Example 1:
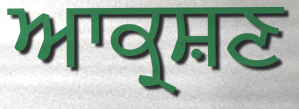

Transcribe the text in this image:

ਆਕ੍ਰਸ਼ਣ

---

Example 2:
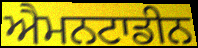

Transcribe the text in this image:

ਐਮਨਟਾਡੀਨ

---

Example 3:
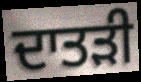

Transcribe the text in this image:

ਦਾਤੜੀ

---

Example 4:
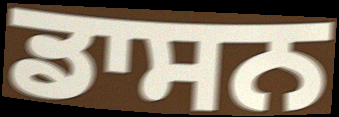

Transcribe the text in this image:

ਡਾਸਨ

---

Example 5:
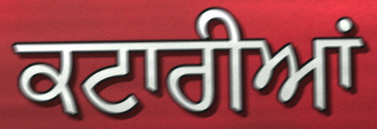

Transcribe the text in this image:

ਕਟਾਰੀਆਂ